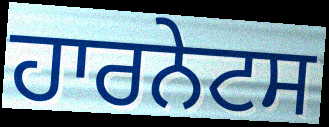
ਹਾਰਨੇਟਸ